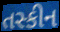
તસ્કીન